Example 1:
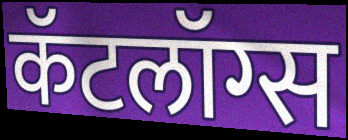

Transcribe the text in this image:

कॅटलॉग्स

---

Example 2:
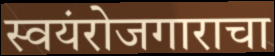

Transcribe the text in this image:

स्वयंरोजगाराचा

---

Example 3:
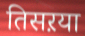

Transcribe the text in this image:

तिसऱया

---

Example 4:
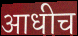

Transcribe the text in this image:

आधीच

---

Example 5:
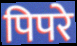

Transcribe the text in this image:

पिपरे